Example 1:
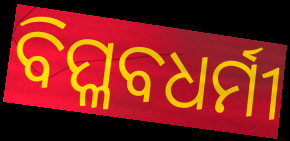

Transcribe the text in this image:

ବିପ୍ଳବଧର୍ମୀ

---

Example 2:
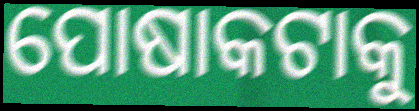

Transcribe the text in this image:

ପୋଷାକଟାକୁ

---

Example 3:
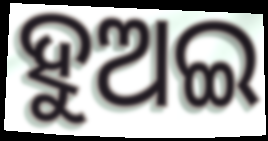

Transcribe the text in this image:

ହୁଅଇ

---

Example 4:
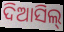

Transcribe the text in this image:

ଦିଆସିଲ୍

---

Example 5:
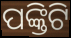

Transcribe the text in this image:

ପଙ୍କ୍ତିଟି